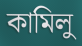
কামিলু